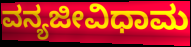
ವನ್ಯಜೀವಿಧಾಮ